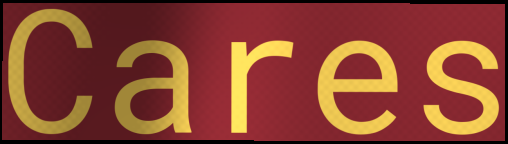
Cares